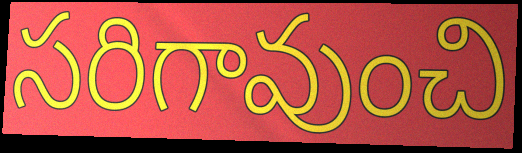
సరిగావుంచి